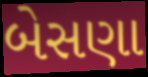
બેસણા